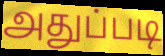
அதுப்படி